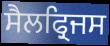
ਸੈਲਫ੍ਰਿਜਸ